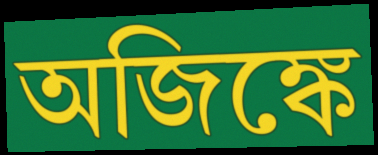
অজিঙ্কে